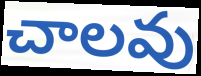
చాలవు